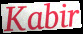
Kabir